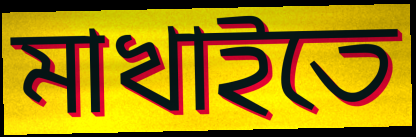
মাখাইতে